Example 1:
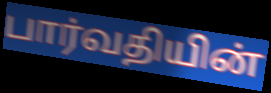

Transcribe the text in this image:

பார்வதியின்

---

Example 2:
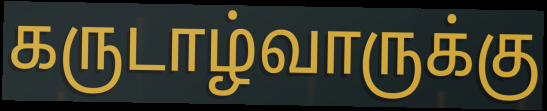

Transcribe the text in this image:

கருடாழ்வாருக்கு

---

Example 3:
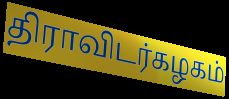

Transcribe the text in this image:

திராவிடர்கழகம்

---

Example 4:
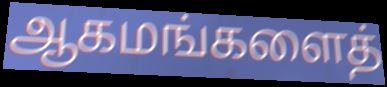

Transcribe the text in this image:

ஆகமங்களைத்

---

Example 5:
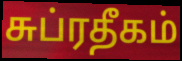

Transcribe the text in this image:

சுப்ரதீகம்